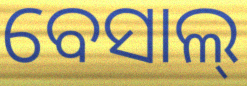
ବେସାଲ୍